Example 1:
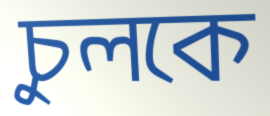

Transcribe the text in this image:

চুলকে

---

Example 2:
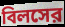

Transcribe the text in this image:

বিলসের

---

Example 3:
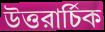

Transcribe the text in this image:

উত্তরার্চিক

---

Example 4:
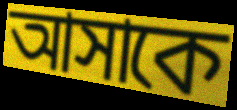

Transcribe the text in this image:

আসাকে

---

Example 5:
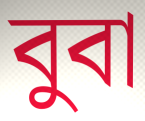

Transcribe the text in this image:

বুবা